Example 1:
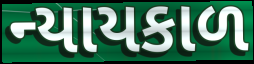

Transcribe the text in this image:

ન્યાયકાળ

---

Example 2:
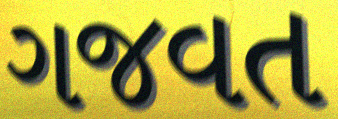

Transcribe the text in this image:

ગજવત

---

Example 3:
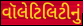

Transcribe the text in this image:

વૉલેટિલિટીનું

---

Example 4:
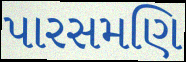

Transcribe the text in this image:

પારસમણિ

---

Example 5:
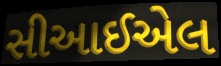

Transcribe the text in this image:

સીઆઈએલ